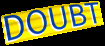
DOUBT